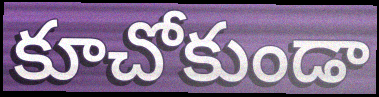
కూచోకుండా